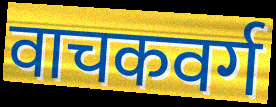
वाचकवर्ग